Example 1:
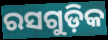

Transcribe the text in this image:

ରସଗୁଡ଼ିକ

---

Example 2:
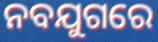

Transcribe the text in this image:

ନବଯୁଗରେ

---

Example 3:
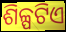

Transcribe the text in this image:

ଶିଳ୍ପଟିଏ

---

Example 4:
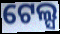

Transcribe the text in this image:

ଟେଲ୍ସ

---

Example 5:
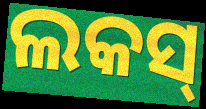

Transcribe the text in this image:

ଲକସ୍